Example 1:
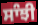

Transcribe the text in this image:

ਸਾੰਝੀ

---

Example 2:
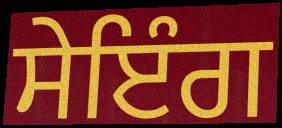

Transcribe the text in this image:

ਸੇਇੰਗ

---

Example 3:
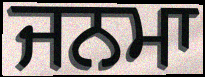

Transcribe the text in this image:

ਜਨਮਾ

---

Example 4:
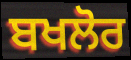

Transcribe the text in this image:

ਬਖਲੋਰ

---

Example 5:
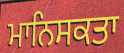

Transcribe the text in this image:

ਮਾਨਿਸਕਤਾ